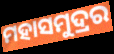
ମହାସମୁଦ୍ରର